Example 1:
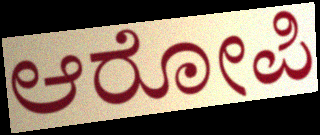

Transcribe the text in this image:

ಆರೋಪಿ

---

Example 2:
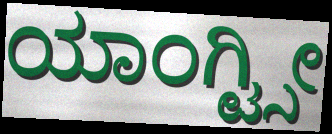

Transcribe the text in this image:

ಯಾಂಗ್ಟ್ಸೀ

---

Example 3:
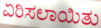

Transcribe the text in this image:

ಏರಿಸಲಾಯಿತು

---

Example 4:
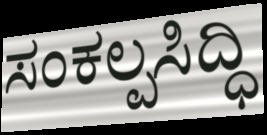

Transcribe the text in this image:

ಸಂಕಲ್ಪಸಿದ್ಧಿ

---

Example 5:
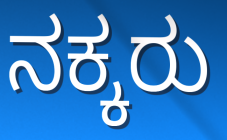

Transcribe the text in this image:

ನಕ್ಕರು